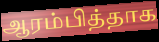
ஆரம்பித்தாக